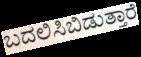
ಬದಲಿಸಿಬಿಡುತ್ತಾರೆ